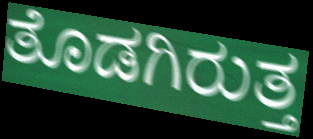
ತೊಡಗಿರುತ್ತ